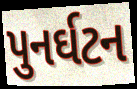
પુનર્ઘટન